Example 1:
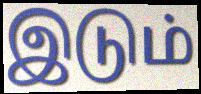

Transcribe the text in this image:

இடும்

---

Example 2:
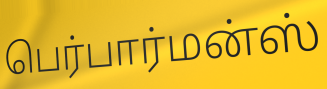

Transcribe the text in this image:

பெர்பார்மன்ஸ்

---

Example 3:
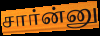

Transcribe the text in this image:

சார்ன்னு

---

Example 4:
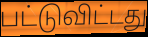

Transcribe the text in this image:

பட்டுவிட்டது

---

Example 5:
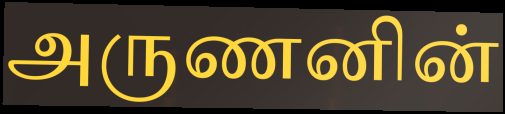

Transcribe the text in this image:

அருணனின்